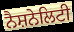
ਨੈਸ਼ਨੇਲਿਟੀ